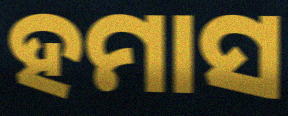
ହମାସ